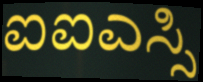
ಐಐಎಸ್ಸಿ